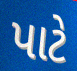
પાટે